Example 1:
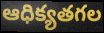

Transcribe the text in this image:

ఆధిక్యతగల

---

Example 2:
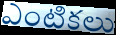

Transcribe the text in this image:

ఎంటికలు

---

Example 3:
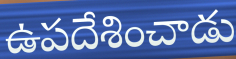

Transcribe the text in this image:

ఉపదేశించాడు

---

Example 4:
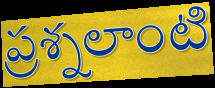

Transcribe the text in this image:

ప్రశ్నలాంటి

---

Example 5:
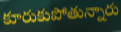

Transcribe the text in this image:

కూరుకుపోతున్నారు